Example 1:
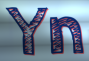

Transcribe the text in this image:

Yn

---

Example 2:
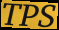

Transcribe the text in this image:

TPS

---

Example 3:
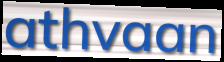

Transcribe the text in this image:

athvaan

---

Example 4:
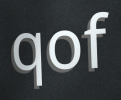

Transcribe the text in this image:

qof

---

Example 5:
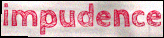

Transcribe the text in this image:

impudence